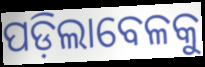
ପଡ଼ିଲାବେଳକୁ